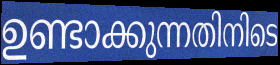
ഉണ്ടാക്കുന്നതിനിടെ